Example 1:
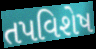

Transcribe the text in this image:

તપવિશેષ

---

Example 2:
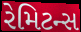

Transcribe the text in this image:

રેમિટન્સ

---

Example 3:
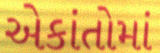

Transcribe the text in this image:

એકાંતોમાં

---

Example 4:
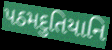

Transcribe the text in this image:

પઠમદુતિયાનિ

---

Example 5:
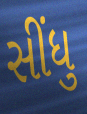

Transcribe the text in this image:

સીંધુ